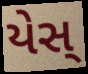
યેસ્